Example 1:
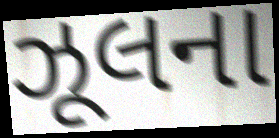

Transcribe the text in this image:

ઝૂલના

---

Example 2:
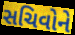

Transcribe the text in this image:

સચિવોને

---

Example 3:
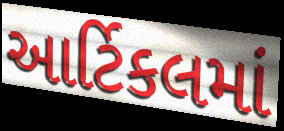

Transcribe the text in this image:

આર્ટિકલમાં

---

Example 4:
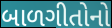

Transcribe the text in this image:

બાળગીતોનો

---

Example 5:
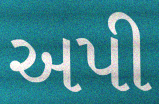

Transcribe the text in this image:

અપી